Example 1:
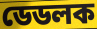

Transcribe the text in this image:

ডেডলক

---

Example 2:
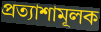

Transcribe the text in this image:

প্রত্যাশামূলক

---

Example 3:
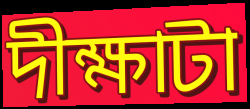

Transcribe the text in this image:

দীক্ষাটা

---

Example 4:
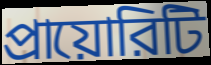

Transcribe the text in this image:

প্রায়োরিটি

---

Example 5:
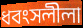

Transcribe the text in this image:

ধবংসলীলা